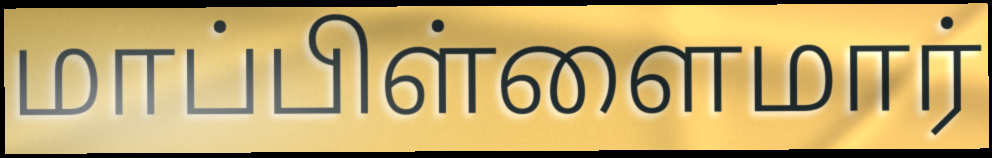
மாப்பிள்ளைமார்